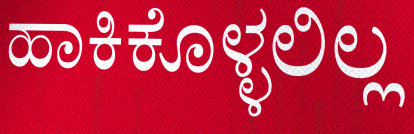
ಹಾಕಿಕೊಳ್ಳಲಿಲ್ಲ